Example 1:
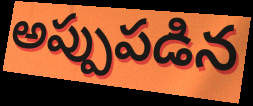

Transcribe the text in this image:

అప్పుపడిన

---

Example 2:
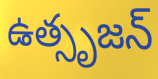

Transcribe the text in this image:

ఉత్సృజన్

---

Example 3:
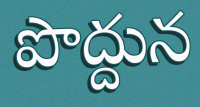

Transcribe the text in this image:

పొద్దున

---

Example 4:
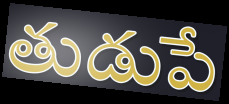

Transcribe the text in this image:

తుడుపే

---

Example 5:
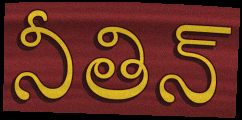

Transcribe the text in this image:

నీతిన్